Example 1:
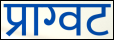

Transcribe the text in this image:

प्राग्वट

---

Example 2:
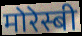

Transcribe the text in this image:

मोरेस्बी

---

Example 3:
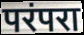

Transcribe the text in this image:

परंपरा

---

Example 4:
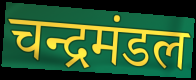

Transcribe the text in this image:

चन्द्रमंडल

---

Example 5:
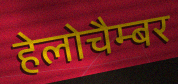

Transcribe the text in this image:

हेलोचैम्बर